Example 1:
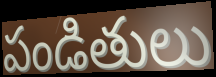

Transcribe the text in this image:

పండితులు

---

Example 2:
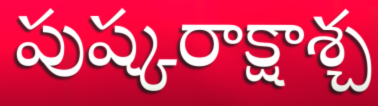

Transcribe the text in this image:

పుష్కరాక్షాశ్చ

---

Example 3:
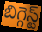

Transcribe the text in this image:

బిగ్గెస్ట్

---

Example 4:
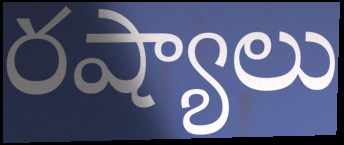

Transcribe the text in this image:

రష్యాలు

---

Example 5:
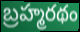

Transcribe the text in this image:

బ్రహ్మరథం